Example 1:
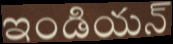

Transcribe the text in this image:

ఇండియన్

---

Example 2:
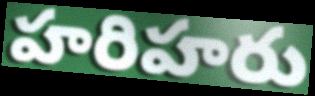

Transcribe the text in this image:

హరిహరు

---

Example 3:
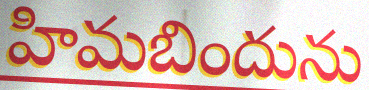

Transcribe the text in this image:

హిమబిందును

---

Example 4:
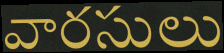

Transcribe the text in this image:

వారసులు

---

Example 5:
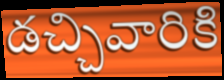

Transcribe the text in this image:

డచ్చివారికి